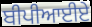
ਬੀਪੀਆਈਏ